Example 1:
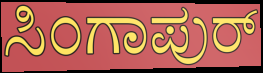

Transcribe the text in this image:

ಸಿಂಗಾಪುರ್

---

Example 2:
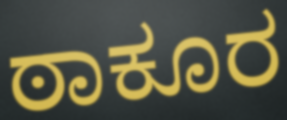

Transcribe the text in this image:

ಠಾಕೂರ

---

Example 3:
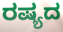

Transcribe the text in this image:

ರಷ್ಯದ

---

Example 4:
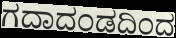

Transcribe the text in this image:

ಗದಾದಂಡದಿಂದ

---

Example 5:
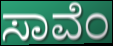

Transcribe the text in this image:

ಸಾವೆಂ